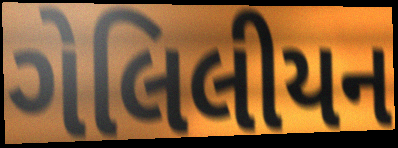
ગેલિલીયન